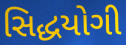
સિદ્ધયોગી